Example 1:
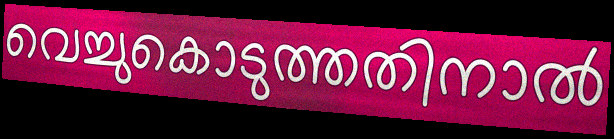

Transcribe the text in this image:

വെച്ചുകൊടുത്തതിനാൽ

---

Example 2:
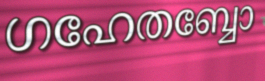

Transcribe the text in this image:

ഗഹേതബ്ബോ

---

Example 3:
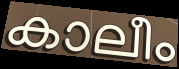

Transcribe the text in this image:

കാലീം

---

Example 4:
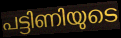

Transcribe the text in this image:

പട്ടിണിയുടെ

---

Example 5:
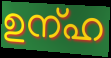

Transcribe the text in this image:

ഉന്ഹ